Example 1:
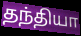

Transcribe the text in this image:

தந்தியா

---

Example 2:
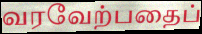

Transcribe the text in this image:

வரவேற்பதைப்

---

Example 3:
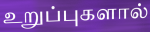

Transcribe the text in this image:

உறுப்புகளால்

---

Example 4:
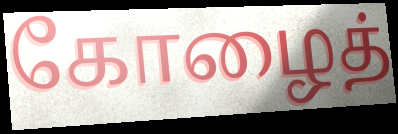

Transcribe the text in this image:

கோழைத்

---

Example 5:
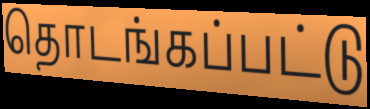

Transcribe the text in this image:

தொடங்கப்பட்டு